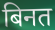
बिनत